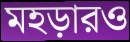
মহড়ারও